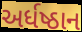
અર્ધષ્ઠાન